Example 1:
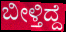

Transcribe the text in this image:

ಬೀಳ್ತಿದ್ದೆ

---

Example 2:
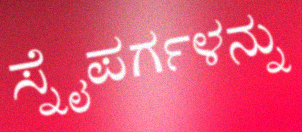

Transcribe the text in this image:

ಸ್ನೈಪರ್ಗಳನ್ನು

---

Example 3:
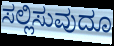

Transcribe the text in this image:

ಸಲ್ಲಿಸುವುದೂ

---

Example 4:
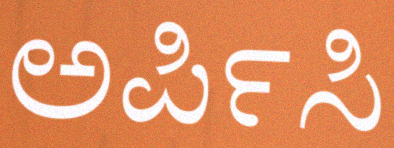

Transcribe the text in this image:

ಅರ್ಪಿಸಿ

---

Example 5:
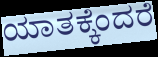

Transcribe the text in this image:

ಯಾತಕ್ಕೆಂದರೆ